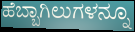
ಹೆಬ್ಬಾಗಿಲುಗಳನ್ನೂ